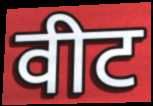
वीट